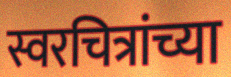
स्वरचित्रांच्या